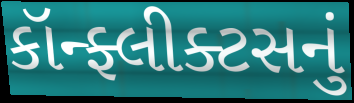
કૉન્ફ્લીક્ટસનું